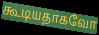
கூடியதாகவோ